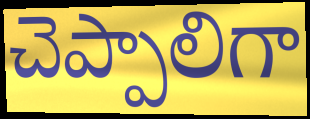
చెప్పాలిగా